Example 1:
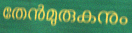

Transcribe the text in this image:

തേൻമുരുകനും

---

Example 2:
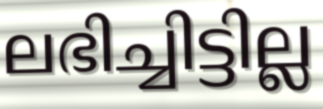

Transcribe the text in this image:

ലഭിച്ചിട്ടില്ല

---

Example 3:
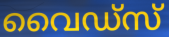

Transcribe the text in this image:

വൈഡ്സ്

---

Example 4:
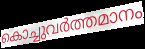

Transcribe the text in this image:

കൊച്ചുവർത്തമാനം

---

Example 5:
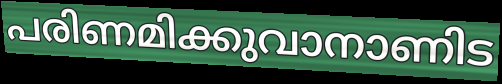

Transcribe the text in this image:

പരിണമിക്കുവാനാണിട